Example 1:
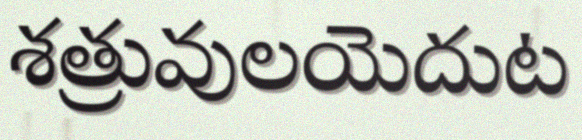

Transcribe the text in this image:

శత్రువులయెదుట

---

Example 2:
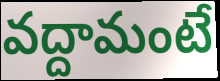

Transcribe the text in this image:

వద్దామంటే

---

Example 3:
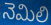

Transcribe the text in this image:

నెమిలి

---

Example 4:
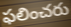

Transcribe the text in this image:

ఫలించరు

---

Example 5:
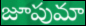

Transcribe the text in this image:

జూపుమా